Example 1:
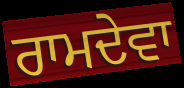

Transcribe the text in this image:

ਰਾਮਦੇਵਾ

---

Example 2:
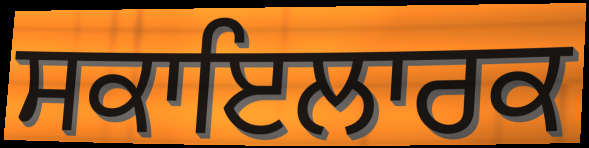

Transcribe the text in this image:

ਸਕਾਇਲਾਰਕ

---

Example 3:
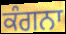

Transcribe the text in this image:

ਕੰਗਨਾ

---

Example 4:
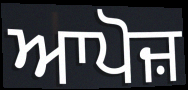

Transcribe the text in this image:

ਆਪੋਜ਼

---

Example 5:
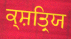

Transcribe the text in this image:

ਕ੍ਸ਼ਤ੍ਰਿਯ